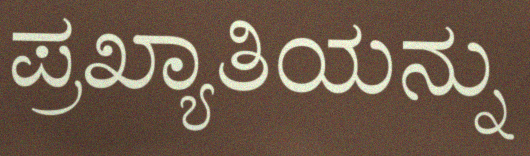
ಪ್ರಖ್ಯಾತಿಯನ್ನು